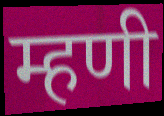
म्हणी